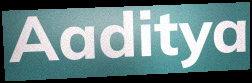
Aaditya